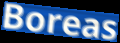
Boreas